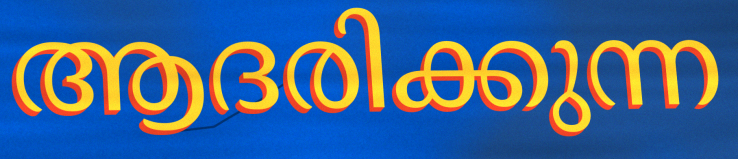
ആദരിക്കുന്ന